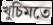
খুচিমতে